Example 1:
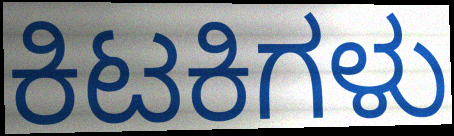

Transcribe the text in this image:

ಕಿಟಕಿಗಳು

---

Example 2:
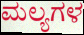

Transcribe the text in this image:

ಮಲ್ಯಗಳ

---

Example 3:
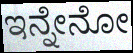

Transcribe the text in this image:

ಇನ್ನೇನೋ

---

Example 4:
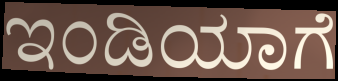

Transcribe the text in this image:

ಇಂಡಿಯಾಗೆ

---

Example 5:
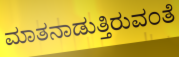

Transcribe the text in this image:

ಮಾತನಾಡುತ್ತಿರುವಂತೆ